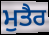
ਮੁਤੈਰ